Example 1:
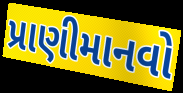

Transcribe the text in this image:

પ્રાણીમાનવો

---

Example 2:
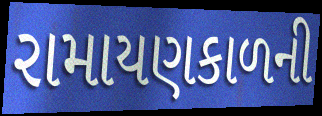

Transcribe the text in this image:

રામાયણકાળની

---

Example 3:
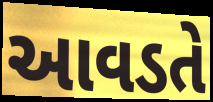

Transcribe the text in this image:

આવડતે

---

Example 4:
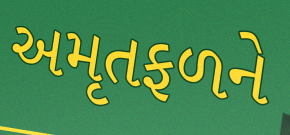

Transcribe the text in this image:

અમૃતફળને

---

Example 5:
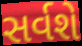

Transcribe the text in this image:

સર્વશે